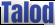
Talod